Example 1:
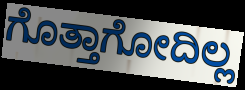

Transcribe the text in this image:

ಗೊತ್ತಾಗೋದಿಲ್ಲ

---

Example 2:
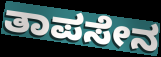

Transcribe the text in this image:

ತಾಪಸೇನ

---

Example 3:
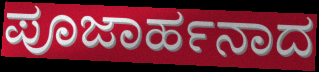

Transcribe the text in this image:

ಪೂಜಾರ್ಹನಾದ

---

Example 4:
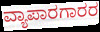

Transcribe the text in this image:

ವ್ಯಾಪಾರಗಾರರ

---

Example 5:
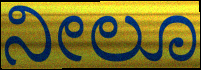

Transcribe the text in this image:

ನೀಲೂ